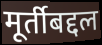
मूर्तीबद्दल